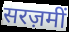
सरज़मीं